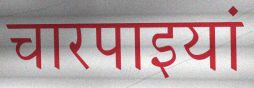
चारपाइयां